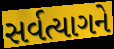
સર્વત્યાગને